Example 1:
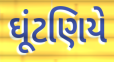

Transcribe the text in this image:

ઘૂંટણિયે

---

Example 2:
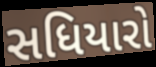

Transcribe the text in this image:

સધિયારો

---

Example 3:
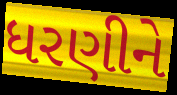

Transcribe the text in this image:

ધરણીને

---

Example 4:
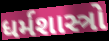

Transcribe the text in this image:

ધર્મશાસ્ત્રો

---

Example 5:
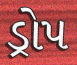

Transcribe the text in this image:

ડ્રોપ